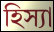
হিস্যা